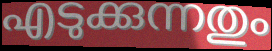
എടുക്കുന്നതും